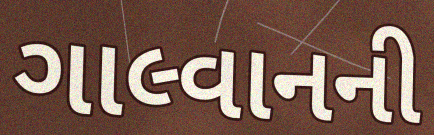
ગાલ્વાનની